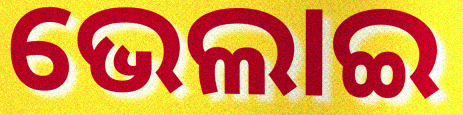
ଭେଲାଇ